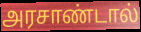
அரசாண்டால்